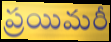
ప్రయిమరీ